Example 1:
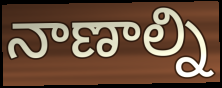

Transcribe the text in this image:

నాణాల్ని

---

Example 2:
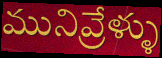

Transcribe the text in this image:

మునివ్రేళ్ళు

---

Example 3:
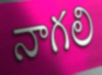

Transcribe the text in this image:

నాగలి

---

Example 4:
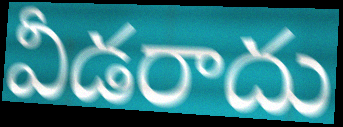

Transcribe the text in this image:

వీడరాదు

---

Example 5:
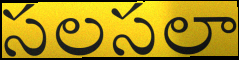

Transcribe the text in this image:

సలసలా